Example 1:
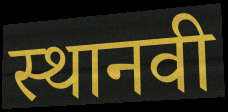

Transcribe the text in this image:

स्थानवी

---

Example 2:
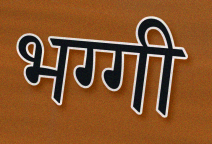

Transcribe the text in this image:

भग्गी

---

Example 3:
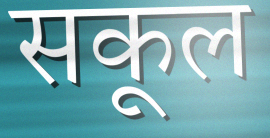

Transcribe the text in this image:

सकूल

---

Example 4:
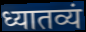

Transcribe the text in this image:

ध्यातव्यं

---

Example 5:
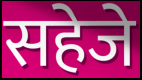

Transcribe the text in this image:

सहेजे